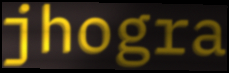
jhogra